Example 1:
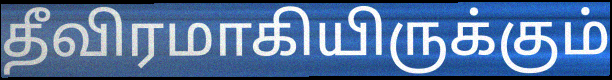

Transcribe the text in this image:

தீவிரமாகியிருக்கும்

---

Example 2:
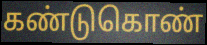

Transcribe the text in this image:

கண்டுகொண்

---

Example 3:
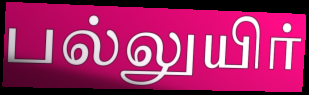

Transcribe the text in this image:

பல்லுயிர்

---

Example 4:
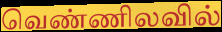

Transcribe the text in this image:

வெண்ணிலவில்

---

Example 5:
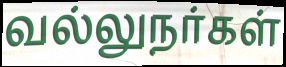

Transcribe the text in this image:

வல்லுநர்கள்